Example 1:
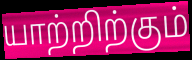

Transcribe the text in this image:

யாற்றிற்கும்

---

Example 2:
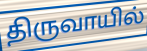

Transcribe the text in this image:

திருவாயில்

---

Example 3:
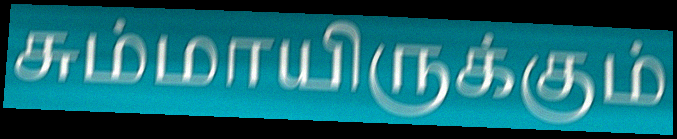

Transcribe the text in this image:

சும்மாயிருக்கும்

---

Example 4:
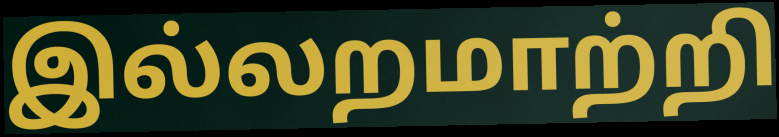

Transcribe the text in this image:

இல்லறமாற்றி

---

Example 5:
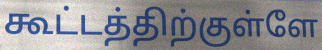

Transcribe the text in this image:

கூட்டத்திற்குள்ளே